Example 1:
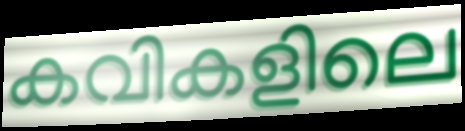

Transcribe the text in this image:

കവികളിലെ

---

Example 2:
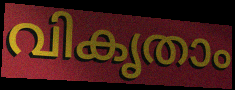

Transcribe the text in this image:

വികൃതാം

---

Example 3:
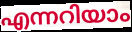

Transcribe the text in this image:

എന്നറിയാം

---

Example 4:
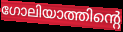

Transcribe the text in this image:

ഗോലിയാത്തിന്റെ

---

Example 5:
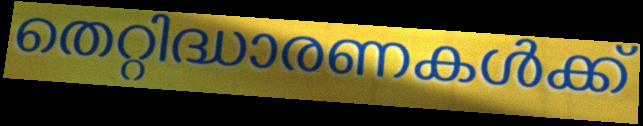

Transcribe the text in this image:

തെറ്റിദ്ധാരണകൾക്ക്